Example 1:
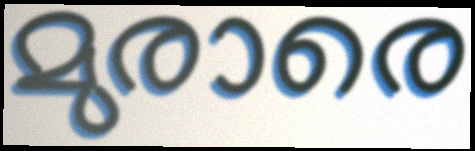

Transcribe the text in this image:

മുരാരെ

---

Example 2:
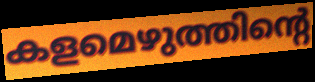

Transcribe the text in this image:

കളമെഴുത്തിന്റെ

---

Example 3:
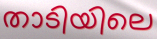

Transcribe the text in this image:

താടിയിലെ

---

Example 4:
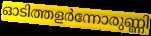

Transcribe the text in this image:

ഓടിത്തളർന്നോരുണ്ണി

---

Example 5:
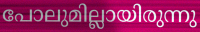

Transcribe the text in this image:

പോലുമില്ലായിരുന്നു